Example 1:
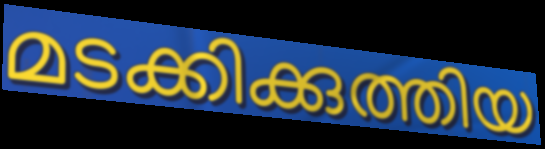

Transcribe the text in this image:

മടക്കിക്കുത്തിയ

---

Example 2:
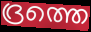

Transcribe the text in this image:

ദ്രത്തെ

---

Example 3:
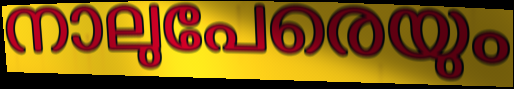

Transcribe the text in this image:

നാലുപേരെയും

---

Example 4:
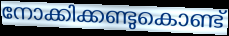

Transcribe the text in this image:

നോക്കിക്കണ്ടുകൊണ്ട്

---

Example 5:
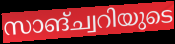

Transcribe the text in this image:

സാങ്ച്വറിയുടെ